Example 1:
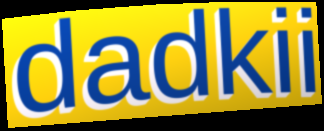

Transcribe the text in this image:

dadkii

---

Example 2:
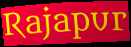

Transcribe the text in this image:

Rajapur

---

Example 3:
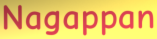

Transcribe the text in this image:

Nagappan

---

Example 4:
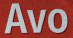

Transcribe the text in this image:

Avo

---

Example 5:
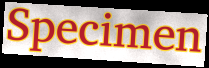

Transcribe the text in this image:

Specimen